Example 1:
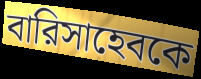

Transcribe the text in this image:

বারিসাহেবকে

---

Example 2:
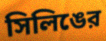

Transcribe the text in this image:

সিলিঙের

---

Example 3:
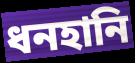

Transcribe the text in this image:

ধনহানি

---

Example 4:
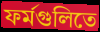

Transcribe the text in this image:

ফর্মগুলিতে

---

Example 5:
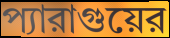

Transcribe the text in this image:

প্যারাগুয়ের